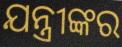
ଯନ୍ତ୍ରୀଙ୍କର